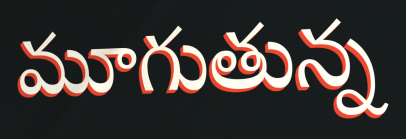
మూగుతున్న